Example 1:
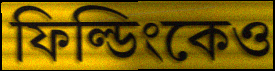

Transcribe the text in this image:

ফিল্ডিংকেও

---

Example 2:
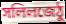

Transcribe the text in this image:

সলিলজেঠু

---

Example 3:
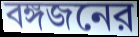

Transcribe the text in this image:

বঙ্গজনের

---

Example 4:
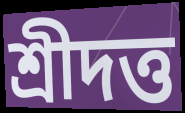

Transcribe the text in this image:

শ্রীদত্ত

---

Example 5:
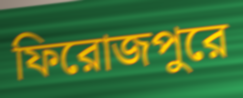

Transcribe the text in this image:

ফিরোজপুরে